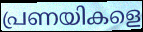
പ്രണയികളെ